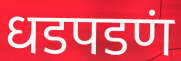
धडपडणं